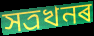
সত্ৰখনৰ